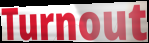
Turnout